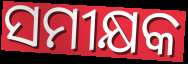
ସମୀକ୍ଷକ